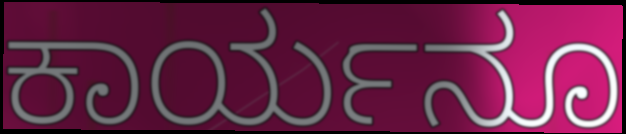
ಕಾರ್ಯನೂ